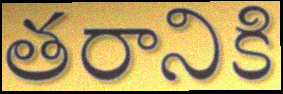
తరానికి